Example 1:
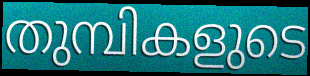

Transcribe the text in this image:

തുമ്പികളുടെ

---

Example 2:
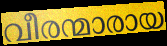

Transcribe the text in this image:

വീരന്മാരായ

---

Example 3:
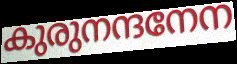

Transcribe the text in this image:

കുരുനന്ദനേന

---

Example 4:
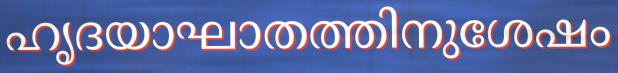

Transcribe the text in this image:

ഹൃദയാഘാതത്തിനുശേഷം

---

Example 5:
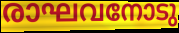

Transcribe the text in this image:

രാഘവനോടു